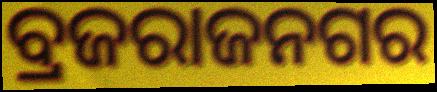
ବ୍ରଜରାଜନଗର